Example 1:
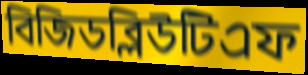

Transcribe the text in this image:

বিজিডব্লিউটিএফ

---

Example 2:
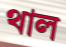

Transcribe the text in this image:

থাল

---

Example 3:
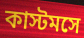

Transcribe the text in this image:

কাস্টমসে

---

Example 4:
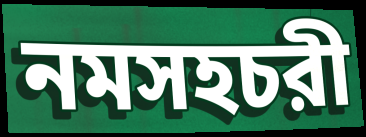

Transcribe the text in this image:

নমসহচরী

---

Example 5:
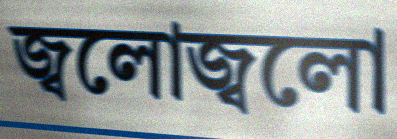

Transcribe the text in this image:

জ্বলোজ্বলো